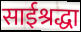
साईश्रद्धा